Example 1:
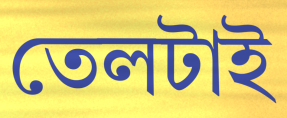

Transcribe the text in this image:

তেলটাই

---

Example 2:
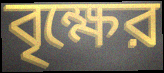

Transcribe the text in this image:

বৃক্ষের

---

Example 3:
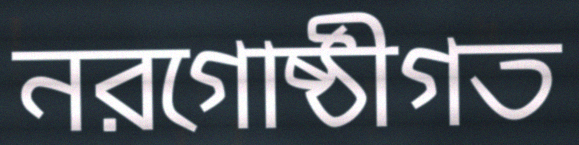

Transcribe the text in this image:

নরগোষ্ঠীগত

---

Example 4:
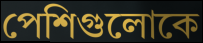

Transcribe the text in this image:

পেশিগুলোকে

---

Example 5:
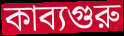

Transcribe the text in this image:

কাব্যগুরু